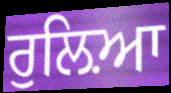
ਰੁਲ਼ਿਆ